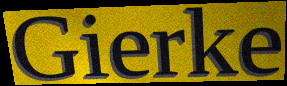
Gierke